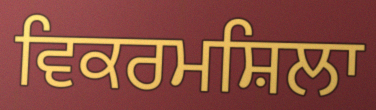
ਵਿਕਰਮਸ਼ਿਲਾ